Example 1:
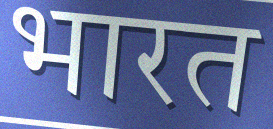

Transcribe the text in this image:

भारत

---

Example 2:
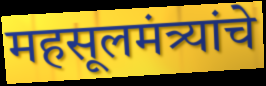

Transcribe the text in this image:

महसूलमंत्र्यांचे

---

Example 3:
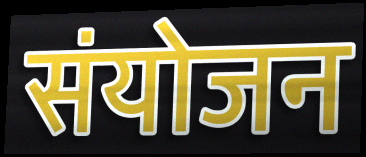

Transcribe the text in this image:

संयोजन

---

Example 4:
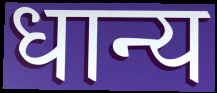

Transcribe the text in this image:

धान्य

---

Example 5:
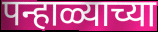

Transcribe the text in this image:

पन्हाळ्याच्या